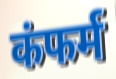
कंफर्म